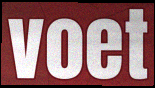
voet